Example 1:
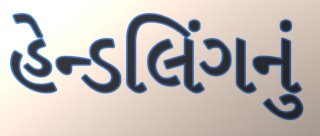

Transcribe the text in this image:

હેન્ડલિંગનું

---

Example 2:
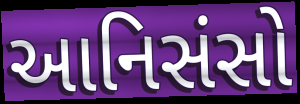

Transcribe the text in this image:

આનિસંસો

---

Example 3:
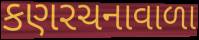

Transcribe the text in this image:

કણરચનાવાળા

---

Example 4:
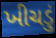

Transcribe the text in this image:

ખીચડું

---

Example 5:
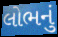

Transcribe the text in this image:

લોભનું